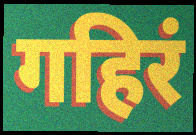
गहिरं